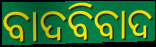
ବାଦବିବାଦ